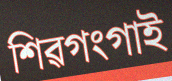
শিৱগংগাই